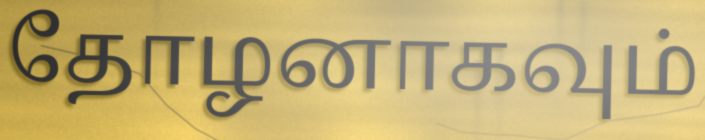
தோழனாகவும்